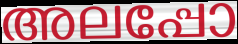
അലപ്പോ